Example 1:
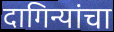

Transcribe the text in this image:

दागिन्यांचा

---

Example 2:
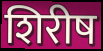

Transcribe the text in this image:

शिरीष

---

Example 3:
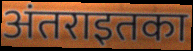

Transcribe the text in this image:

अंतराइतका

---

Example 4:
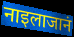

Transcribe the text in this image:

नाइलाजानं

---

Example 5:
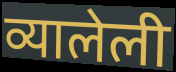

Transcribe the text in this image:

व्यालेली